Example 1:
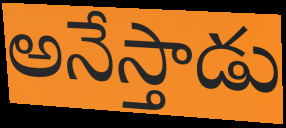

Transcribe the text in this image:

అనేస్తాడు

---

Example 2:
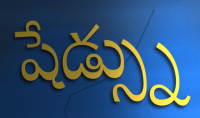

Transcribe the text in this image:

షేడ్స్ను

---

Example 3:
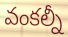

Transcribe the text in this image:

వంకల్నీ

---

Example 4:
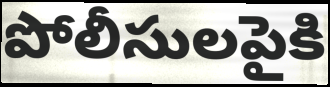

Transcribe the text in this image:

పోలీసులపైకి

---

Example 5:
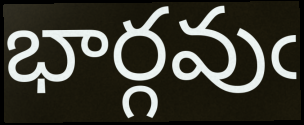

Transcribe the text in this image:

భార్గవుఁ